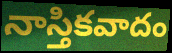
నాస్తికవాదం